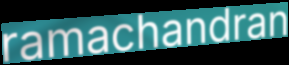
ramachandran